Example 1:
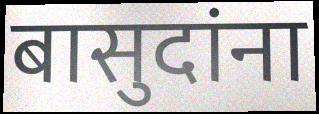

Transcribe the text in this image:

बासुदांना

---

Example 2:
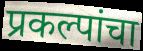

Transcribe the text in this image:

प्रकल्पांचा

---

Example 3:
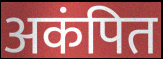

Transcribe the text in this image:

अकंपित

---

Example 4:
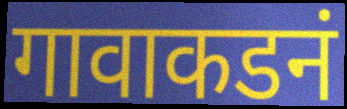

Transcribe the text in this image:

गावाकडनं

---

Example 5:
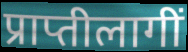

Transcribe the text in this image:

प्राप्तीलागीं